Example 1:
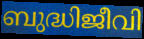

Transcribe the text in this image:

ബുദ്ധിജീവി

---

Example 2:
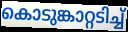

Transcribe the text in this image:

കൊടുങ്കാറ്റടിച്ച്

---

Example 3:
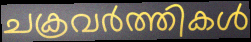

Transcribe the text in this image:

ചക്രവർത്തികൾ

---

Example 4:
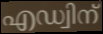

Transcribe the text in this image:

എഡ്വിന്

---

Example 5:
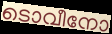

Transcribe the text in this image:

ടൊവീനോ